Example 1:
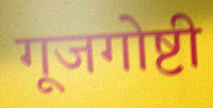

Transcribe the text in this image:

गूजगोष्टी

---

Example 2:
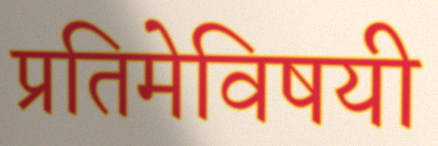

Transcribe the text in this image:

प्रतिमेविषयी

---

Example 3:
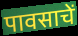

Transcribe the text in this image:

पावसाचें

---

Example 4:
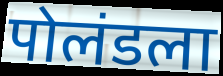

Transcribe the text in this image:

पोलंडला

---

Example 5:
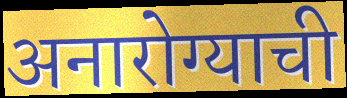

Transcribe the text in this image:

अनारोग्याची